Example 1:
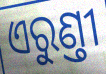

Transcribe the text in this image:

ଏରୁଣ୍ତୀ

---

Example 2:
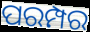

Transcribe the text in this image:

ପରମ୍ପର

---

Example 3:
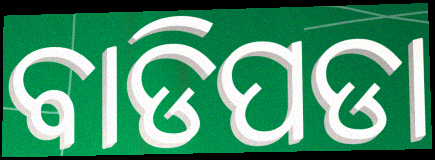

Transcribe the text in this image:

ବାଡିପଡା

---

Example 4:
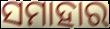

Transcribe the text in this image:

ସମାହାର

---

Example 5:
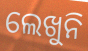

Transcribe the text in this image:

ଲେଖୁନି